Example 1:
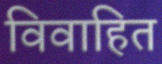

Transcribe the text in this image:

विवाहित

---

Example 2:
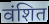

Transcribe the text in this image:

वंशित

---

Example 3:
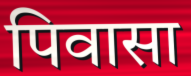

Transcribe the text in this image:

पिवासा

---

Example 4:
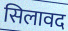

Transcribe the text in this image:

सिलावद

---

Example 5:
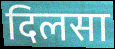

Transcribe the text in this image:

दिलसा